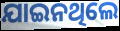
ଯାଇନଥିଲେ